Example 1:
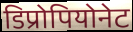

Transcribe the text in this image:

डिप्रोपियोनेट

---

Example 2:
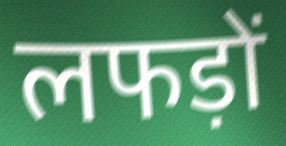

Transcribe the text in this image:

लफड़ों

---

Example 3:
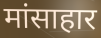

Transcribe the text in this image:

मांसाहार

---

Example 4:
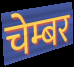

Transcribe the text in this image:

चेम्बर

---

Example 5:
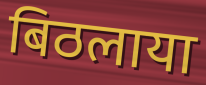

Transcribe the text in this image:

बिठलाया